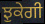
ਝੁਕੇਗੀ